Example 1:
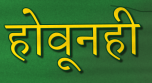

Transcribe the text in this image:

होवूनही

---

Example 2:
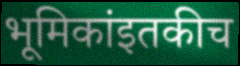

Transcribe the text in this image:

भूमिकांइतकीच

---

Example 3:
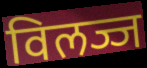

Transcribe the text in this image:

विलज्ज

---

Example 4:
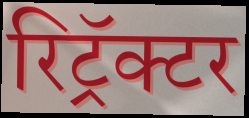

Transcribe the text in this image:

रिट्रॅक्टर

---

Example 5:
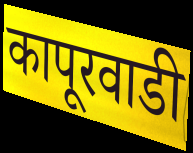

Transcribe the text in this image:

कापूरवाडी